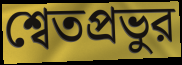
শ্বেতপ্রভুর